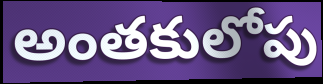
అంతకులోపు